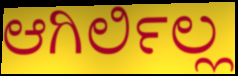
ಆಗಿರ್ಲಿಲ್ಲ